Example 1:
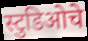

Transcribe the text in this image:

स्टुडिओचे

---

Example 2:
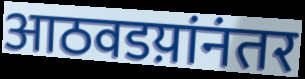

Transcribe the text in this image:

आठवडय़ांनंतर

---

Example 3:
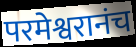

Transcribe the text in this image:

परमेश्वरानंच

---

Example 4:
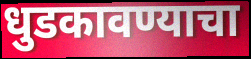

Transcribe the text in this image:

धुडकावण्याचा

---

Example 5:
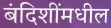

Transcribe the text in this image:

बंदिशींमधील